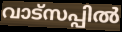
വാട്സപ്പിൽ